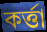
কর্ত্তা